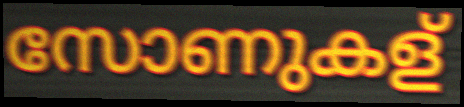
സോണുകള്